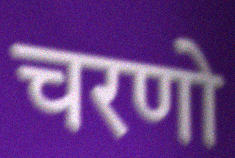
चरणो